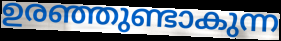
ഉരഞ്ഞുണ്ടാകുന്ന